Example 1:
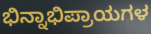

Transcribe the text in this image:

ಭಿನ್ನಾಭಿಪ್ರಾಯಗಳ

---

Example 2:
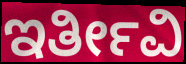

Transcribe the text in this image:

ಇರ್ತೀವಿ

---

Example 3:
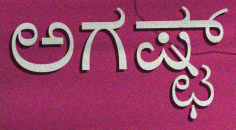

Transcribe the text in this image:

ಅಗಷ್ಟ್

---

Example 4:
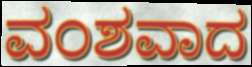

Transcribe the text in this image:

ವಂಶವಾದ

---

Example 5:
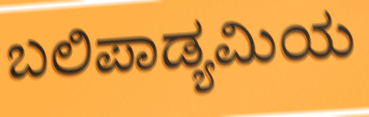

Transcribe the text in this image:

ಬಲಿಪಾಡ್ಯಮಿಯ